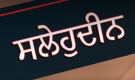
ਸਲੇਹੁਦੀਨ